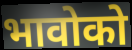
भावोको